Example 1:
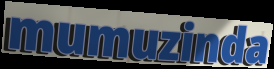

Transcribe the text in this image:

mumuzinda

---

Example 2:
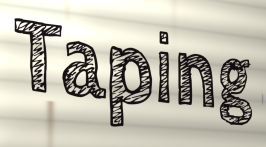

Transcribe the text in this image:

Taping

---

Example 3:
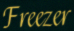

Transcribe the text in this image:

Freezer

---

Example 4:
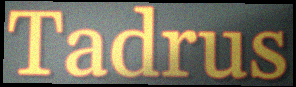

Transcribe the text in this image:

Tadrus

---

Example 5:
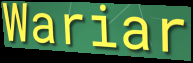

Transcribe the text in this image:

Wariar